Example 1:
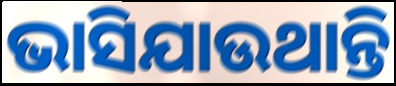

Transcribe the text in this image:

ଭାସିଯାଉଥାନ୍ତି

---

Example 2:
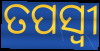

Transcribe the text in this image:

ତପସ୍ବୀ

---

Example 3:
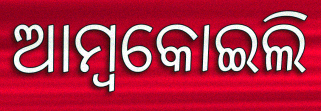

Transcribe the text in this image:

ଆମ୍ବକୋଇଲି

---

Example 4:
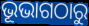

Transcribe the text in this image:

ଭୂଭାଗଠାରୁ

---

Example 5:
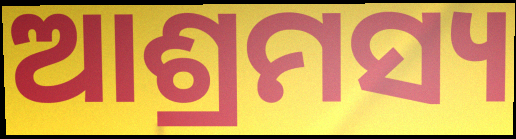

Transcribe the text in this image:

ଆଶ୍ରମସ୍ୟ